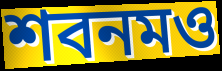
শবনমও